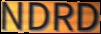
NDRD